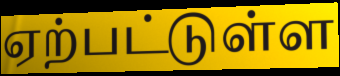
ஏற்பட்டுள்ள